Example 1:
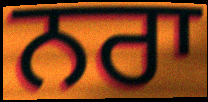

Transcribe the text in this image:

ਨਰਾ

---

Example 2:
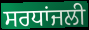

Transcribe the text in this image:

ਸਰਧਾਂਜਲੀ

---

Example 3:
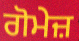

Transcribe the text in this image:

ਗੋਮੇਜ਼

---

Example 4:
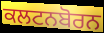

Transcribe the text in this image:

ਕਲਟਨਬੋਰਨ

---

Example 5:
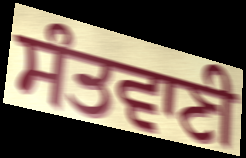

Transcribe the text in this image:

ਸੰਤਵਾਣੀ